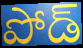
పోడ్